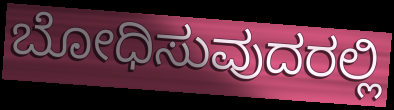
ಬೋಧಿಸುವುದರಲ್ಲಿ